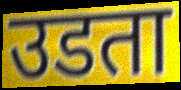
उडता